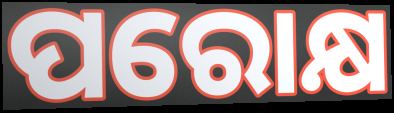
ପରୋକ୍ଷ